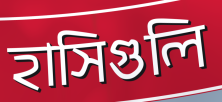
হাসিগুলি